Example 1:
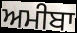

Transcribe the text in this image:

ਅਮੀਬਾ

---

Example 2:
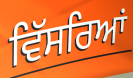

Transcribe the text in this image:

ਵਿੱਸਰਿਆਂ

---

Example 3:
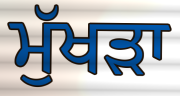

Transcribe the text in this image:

ਮੁੱਖੜਾ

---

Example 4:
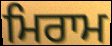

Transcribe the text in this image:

ਮਿਰਾਮ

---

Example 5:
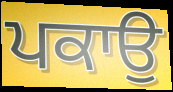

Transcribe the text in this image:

ਪਕਾਉ